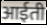
आईती